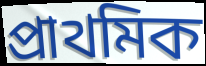
প্রাথমিক